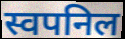
स्वपनिल